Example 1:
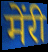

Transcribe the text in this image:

मेंरी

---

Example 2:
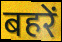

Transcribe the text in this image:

बहरें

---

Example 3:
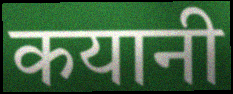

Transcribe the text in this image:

कयानी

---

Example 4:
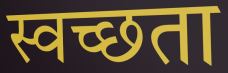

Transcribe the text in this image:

स्वच्छता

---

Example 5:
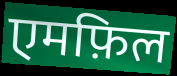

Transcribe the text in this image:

एमफ़िल